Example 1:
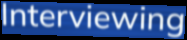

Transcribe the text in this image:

Interviewing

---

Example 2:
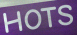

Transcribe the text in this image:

HOTS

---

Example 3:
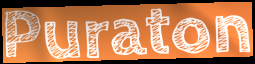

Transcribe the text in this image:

Puraton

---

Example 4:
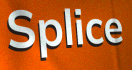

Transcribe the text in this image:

Splice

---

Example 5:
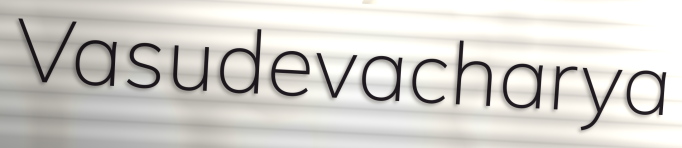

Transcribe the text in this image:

Vasudevacharya